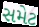
સમેટ